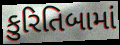
કુરિતિબામાં